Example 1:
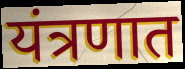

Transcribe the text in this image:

यंत्रणात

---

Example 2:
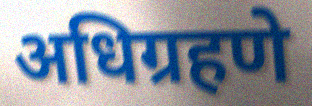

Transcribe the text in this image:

अधिग्रहणे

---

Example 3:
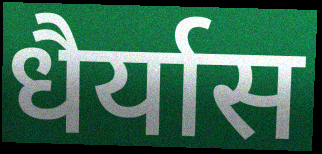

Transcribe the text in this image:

धैर्यास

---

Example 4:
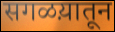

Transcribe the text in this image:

सगळय़ातून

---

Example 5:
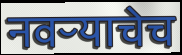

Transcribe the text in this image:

नवऱ्याचेच